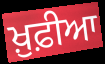
ਖ਼ੁਫ਼ੀਆ